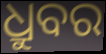
ଧ୍ରୁବର